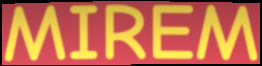
MIREM